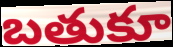
బతుకూ